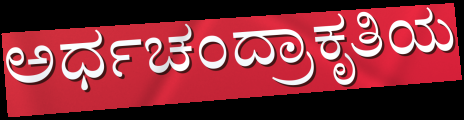
ಅರ್ಧಚಂದ್ರಾಕೃತಿಯ